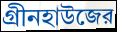
গ্রীনহাউজের